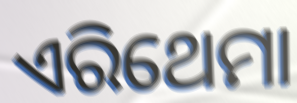
ଏରିଥେମା